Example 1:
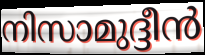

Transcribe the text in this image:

നിസാമുദ്ദീൻ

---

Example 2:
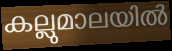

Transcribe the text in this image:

കല്ലുമാലയിൽ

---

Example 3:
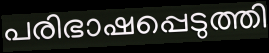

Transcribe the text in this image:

പരിഭാഷപ്പെടുത്തി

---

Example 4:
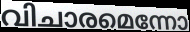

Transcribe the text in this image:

വിചാരമെന്നോ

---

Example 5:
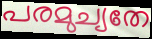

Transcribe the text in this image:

പരമുച്യതേ